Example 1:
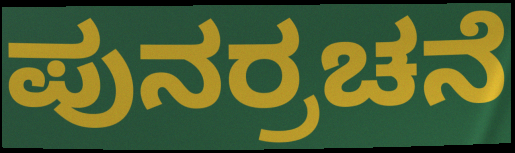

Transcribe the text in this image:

ಪುನರ್ರಚನೆ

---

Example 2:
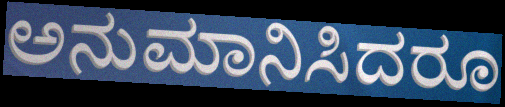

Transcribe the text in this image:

ಅನುಮಾನಿಸಿದರೂ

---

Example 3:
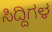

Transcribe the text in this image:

ಸಿದ್ದಿಗಳ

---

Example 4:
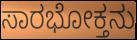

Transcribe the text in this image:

ಸಾರಭೋಕ್ತನು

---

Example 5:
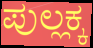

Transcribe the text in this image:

ಪುಲ್ಲಕ್ಕ